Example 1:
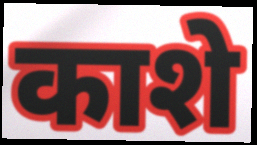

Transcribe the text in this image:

काशे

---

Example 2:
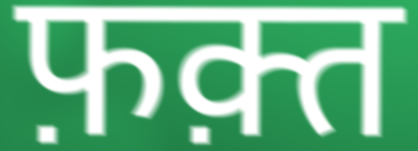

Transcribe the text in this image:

फ़क़्त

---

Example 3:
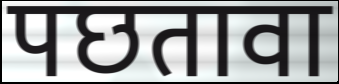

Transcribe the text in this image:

पछतावा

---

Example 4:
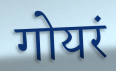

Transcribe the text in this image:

गोयरं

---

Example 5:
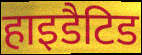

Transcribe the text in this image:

हाइडैटिड